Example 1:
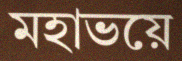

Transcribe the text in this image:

মহাভয়ে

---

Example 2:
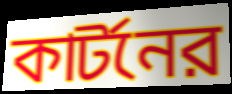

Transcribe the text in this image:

কার্টনের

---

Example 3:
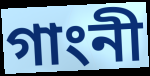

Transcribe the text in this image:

গাংনী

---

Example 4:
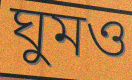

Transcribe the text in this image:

ঘুমও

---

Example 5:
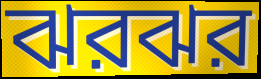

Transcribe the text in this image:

ঝরঝর